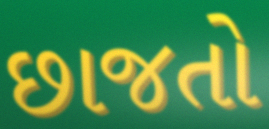
છાજતો